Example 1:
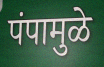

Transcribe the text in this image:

पंपामुळे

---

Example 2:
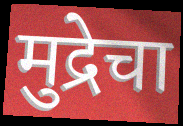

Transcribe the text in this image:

मुद्रेचा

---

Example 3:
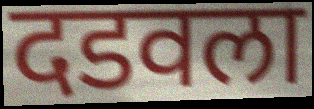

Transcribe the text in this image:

दडवला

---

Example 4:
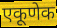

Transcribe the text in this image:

एकूणेक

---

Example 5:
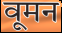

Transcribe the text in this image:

वूमन